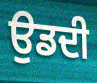
ਉਡਦੀ